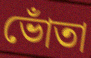
ভোঁতা